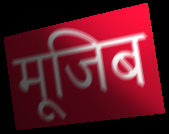
मूजिब